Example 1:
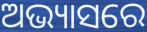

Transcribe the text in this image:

ଅଭ୍ୟାସରେ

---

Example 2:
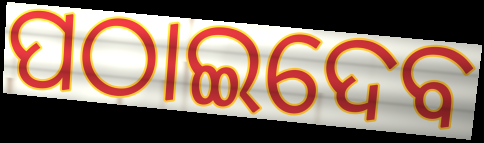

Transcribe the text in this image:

ପଠାଇଦେବ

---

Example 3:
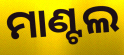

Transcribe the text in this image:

ମାଣ୍ଟଲ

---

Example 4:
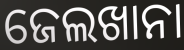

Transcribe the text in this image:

ଜେଲଖାନା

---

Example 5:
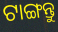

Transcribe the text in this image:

ଟାଙ୍ଗନ୍ତୁ